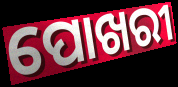
ପୋଖରୀ